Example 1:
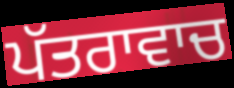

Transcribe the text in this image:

ਪੱਤਰਾਵਾਚ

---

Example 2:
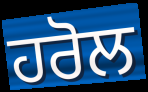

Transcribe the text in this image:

ਹਰੋਲ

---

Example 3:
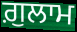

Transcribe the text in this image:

ਗ਼ੁਲਾਮ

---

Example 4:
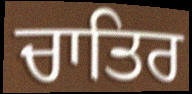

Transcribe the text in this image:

ਚਾਤਿਰ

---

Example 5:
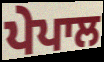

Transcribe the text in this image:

ਪੇਪਾਲ